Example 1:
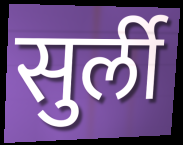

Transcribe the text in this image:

सुर्ली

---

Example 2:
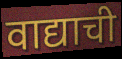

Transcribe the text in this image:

वाद्याची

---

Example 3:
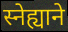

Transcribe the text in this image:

स्नेह्याने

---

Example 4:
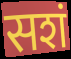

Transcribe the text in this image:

सशं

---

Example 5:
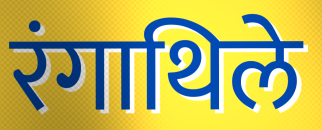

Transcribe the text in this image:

रंगाथिले